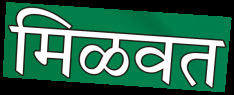
मिळवत